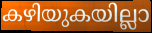
കഴിയുകയില്ലാ